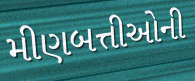
મીણબત્તીઓની